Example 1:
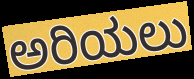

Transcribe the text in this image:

ಅರಿಯಲು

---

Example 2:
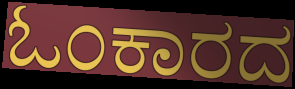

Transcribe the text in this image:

ಓಂಕಾರದ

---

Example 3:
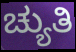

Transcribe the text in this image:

ಚ್ಯುತಿ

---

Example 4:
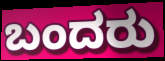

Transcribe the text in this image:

ಬಂದರು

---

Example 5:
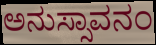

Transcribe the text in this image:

ಅನುಸ್ಸಾವನಂ